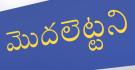
మొదలెట్టని